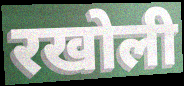
रखोली